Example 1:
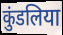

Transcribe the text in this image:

कुंडलिया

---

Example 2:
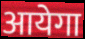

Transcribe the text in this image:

आयेगा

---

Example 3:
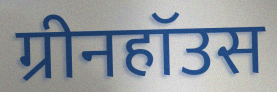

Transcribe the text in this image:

ग्रीनहॉउस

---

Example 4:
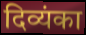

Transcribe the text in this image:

दिव्यंका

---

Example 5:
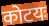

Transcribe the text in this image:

कोटयः